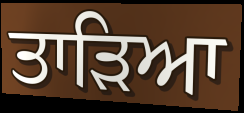
ਤਾੜਿਆ